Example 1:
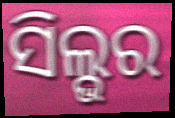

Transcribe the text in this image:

ସିଲ୍ଭର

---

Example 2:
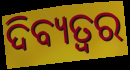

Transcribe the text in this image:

ଦିବ୍ୟତ୍ବର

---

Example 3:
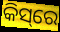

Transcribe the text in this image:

କିସ୍‌ରେ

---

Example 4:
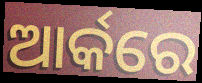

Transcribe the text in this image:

ଆର୍କରେ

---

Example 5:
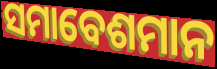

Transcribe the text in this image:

ସମାବେଶମାନ